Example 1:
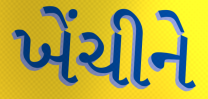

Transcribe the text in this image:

ખેંચીને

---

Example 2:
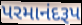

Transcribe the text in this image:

પરમાનંદરૂપ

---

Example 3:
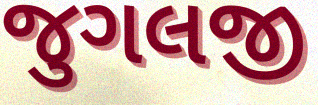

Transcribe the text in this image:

જુગલજી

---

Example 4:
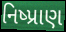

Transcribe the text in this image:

નિષ્પ્રાણ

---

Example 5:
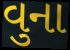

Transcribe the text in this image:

વુના